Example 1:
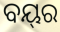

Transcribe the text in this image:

ବୟ୍‌ର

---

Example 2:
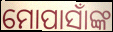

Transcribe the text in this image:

ମୋପାସାଁଙ୍କ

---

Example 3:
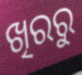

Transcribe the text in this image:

ଖିରରୁ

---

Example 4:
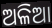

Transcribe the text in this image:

ଅଳିଆ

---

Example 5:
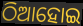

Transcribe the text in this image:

ଠିଆହୋଇ